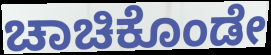
ಚಾಚಿಕೊಂಡೇ